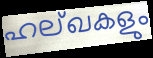
ഹല്ഖകളും